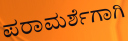
ಪರಾಮರ್ಶೆಗಾಗಿ